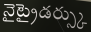
నైట్రైడర్స్కు